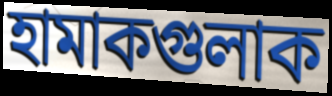
হামাকগুলাক